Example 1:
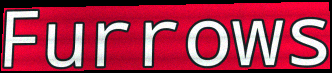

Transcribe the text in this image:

Furrows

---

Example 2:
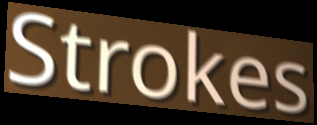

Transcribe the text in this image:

Strokes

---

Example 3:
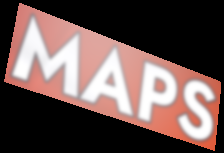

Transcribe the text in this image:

MAPS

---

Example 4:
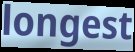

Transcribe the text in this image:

longest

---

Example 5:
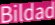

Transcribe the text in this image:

Bildad